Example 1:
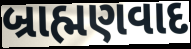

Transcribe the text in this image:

બ્રાહ્મણવાદ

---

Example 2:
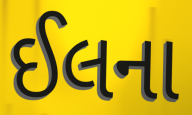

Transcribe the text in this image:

ઈલના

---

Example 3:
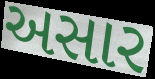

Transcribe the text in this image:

અસાર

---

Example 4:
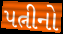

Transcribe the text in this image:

પત્નીનો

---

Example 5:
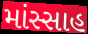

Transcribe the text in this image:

માંસ્સાહ